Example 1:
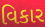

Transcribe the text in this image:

વિકાર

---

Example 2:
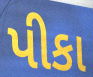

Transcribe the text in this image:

પીકા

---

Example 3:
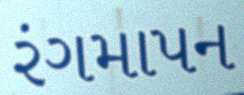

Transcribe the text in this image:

રંગમાપન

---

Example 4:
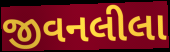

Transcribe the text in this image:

જીવનલીલા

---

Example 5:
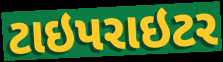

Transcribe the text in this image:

ટાઇપરાઇટર